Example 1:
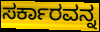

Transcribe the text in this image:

ಸರ್ಕಾರವನ್ನ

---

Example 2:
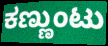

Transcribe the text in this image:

ಕಣ್ಣುಂಟು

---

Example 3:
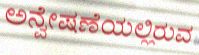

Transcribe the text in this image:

ಅನ್ವೇಷಣೆಯಲ್ಲಿರುವ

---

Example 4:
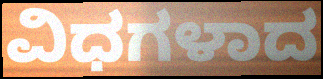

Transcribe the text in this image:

ವಿಧಗಳಾದ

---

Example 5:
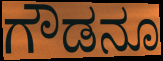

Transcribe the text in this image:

ಗೌಡನೂ